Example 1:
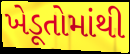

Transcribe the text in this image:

ખેડૂતોમાંથી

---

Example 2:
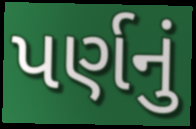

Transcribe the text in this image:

પર્ણનું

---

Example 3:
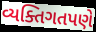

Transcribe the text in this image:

વ્યક્તિગતપણે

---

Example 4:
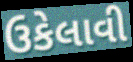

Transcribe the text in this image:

ઉકેલાવી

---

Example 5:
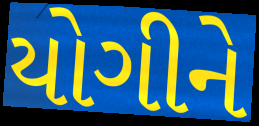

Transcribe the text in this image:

યોગીને